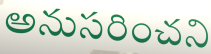
అనుసరించని